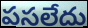
పసలేదు